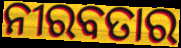
ନୀରବତାର